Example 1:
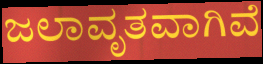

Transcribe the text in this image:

ಜಲಾವೃತವಾಗಿವೆ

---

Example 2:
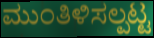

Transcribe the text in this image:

ಮುಂತಿಳಿಸಲ್ಪಟ್ಟ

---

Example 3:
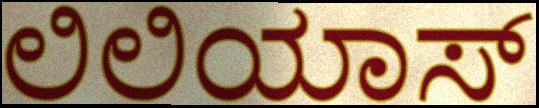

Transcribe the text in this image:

ಲಿಲಿಯಾಸ್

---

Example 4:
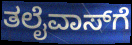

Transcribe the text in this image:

ತಲೈವಾಸ್‌ಗೆ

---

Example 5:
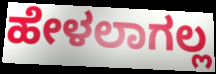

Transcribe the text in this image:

ಹೇಳಲಾಗಲ್ಲ